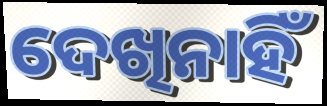
ଦେଖିନାହିଁ